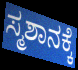
ಸ್ಮಶಾನಕ್ಕೆ